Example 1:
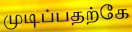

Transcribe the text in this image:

முடிப்பதற்கே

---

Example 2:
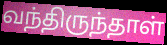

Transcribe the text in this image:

வந்திருந்தாள்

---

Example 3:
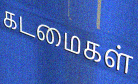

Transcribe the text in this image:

கடமைகள்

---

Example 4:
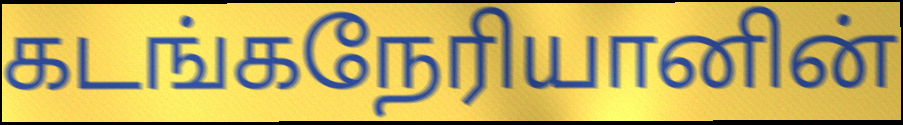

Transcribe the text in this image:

கடங்கநேரியானின்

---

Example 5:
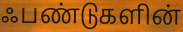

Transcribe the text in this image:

ஃபண்டுகளின்